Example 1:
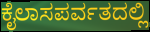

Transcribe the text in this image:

ಕೈಲಾಸಪರ್ವತದಲ್ಲಿ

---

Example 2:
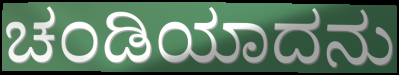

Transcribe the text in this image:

ಚಂಡಿಯಾದನು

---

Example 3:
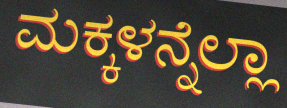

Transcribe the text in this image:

ಮಕ್ಕಳನ್ನೆಲ್ಲಾ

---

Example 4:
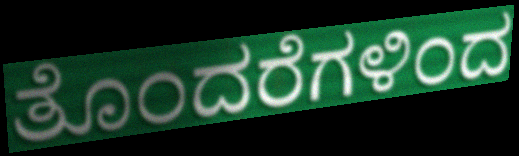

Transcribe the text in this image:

ತೊಂದರೆಗಳಿಂದ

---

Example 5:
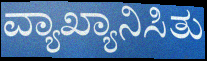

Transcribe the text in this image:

ವ್ಯಾಖ್ಯಾನಿಸಿತು